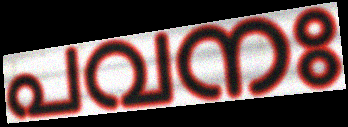
പവനഃ